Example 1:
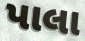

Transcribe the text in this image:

પાલા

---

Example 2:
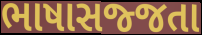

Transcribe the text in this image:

ભાષાસજ્જતા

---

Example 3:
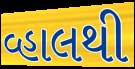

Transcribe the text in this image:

વ્હાલથી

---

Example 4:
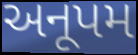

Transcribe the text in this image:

અનૂપમ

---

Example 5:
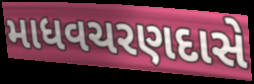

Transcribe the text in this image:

માધવચરણદાસે